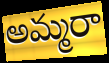
అమ్మరా